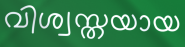
വിശ്വസ്തയായ